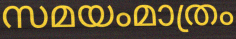
സമയംമാത്രം